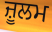
ਜ਼ੂਲਮ